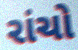
રાંચો